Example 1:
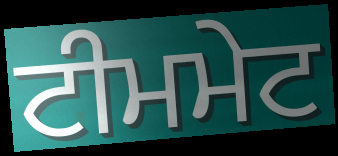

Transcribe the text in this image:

ਟੀਮਮੇਟ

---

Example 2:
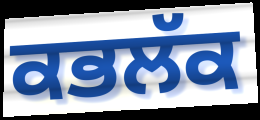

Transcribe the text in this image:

ਕਭਲੱਕ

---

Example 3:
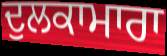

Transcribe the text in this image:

ਦੁਲਕਾਮਾਰਾ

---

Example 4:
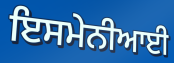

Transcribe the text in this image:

ਇਸਮੇਨੀਆਈ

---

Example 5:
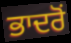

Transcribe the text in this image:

ਭਾਦਰੋਂ